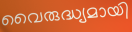
വൈരുദ്ധ്യമായി